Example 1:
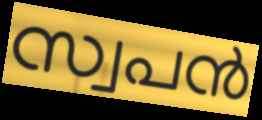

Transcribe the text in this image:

സ്വപൻ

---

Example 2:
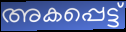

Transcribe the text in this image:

അകപ്പെട്ട്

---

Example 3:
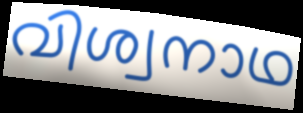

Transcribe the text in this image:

വിശ്വനാഥ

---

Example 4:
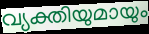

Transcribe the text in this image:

വ്യക്തിയുമായും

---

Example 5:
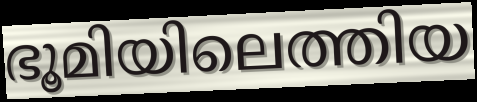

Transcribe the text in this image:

ഭൂമിയിലെത്തിയ